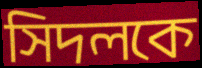
সিদলকে